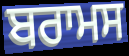
ਬਰਾਮਸ